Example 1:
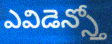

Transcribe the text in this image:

ఎవిడెన్స్తో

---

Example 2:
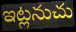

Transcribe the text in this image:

ఇట్లనుచు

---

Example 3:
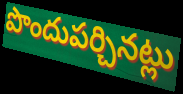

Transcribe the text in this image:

పొందుపర్చినట్లు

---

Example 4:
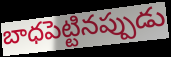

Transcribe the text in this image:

బాధపెట్టినప్పుడు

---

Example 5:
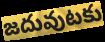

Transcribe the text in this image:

జదువుటకు